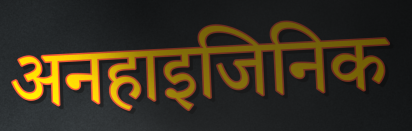
अनहाइजिनिक